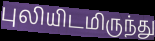
புலியிடமிருந்து